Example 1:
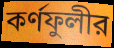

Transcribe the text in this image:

কর্ণফুলীর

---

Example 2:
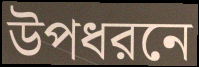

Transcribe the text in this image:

উপধরনে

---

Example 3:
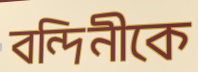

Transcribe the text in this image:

বন্দিনীকে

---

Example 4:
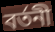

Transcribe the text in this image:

বর্তনী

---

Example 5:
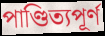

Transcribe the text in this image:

পাণ্ডিত্যপূর্ণ